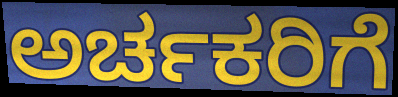
ಅರ್ಚಕರಿಗೆ